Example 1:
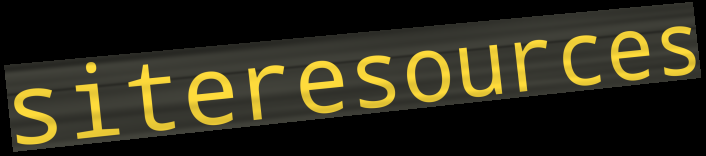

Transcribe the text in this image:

siteresources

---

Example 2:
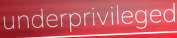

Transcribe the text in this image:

underprivileged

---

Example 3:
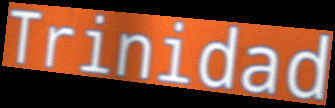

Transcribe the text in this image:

Trinidad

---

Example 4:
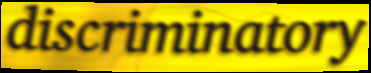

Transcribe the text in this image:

discriminatory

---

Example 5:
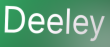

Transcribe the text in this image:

Deeley